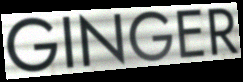
GINGER